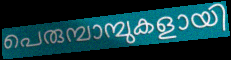
പെരുമ്പാമ്പുകളായി